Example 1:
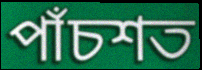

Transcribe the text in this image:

পাঁচশত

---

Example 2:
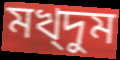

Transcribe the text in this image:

মখ্দুম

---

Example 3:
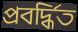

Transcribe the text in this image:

প্রবর্দ্ধিত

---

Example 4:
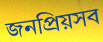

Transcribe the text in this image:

জনপ্রিয়সব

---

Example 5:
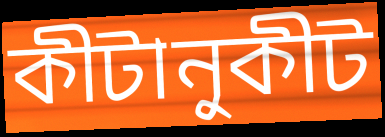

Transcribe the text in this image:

কীটানুকীট